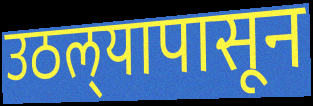
उठल्यापासून